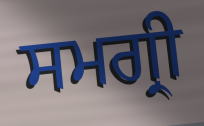
ਸਮਗ੍ਰੀ